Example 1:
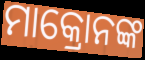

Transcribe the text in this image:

ମାକ୍ରୋନଙ୍କ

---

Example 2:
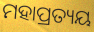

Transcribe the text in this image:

ମହାପ୍ରତ୍ୟୟ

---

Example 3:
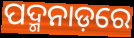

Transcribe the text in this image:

ପଦ୍ମନାଡ଼ରେ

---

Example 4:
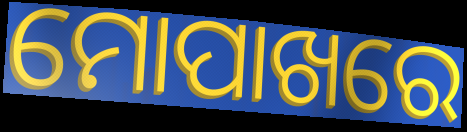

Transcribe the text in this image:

ମୋପାଖରେ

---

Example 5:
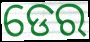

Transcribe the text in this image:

ଡେର